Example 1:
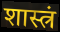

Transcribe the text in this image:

शास्त्रं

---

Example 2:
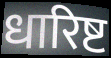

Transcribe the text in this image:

धारिष्ट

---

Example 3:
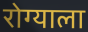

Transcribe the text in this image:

रोग्याला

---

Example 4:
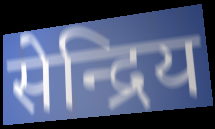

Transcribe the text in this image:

सेन्द्रिय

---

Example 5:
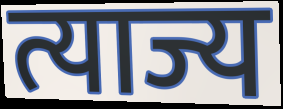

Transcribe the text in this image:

त्याज्य